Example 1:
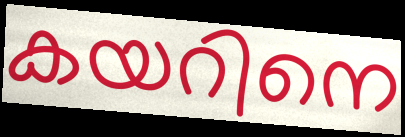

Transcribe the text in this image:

കയറിനെ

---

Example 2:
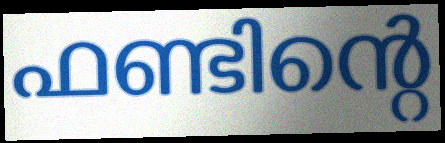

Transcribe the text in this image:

ഫണ്ടിന്റെ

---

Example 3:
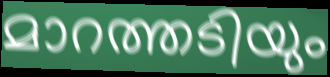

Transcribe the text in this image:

മാറത്തടിയും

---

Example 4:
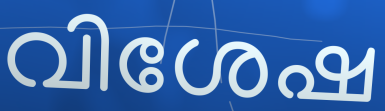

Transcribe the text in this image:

വിശേഷ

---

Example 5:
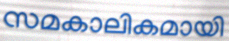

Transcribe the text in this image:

സമകാലികമായി